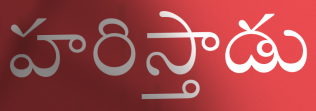
హరిస్తాడు